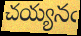
చయ్యనఁ